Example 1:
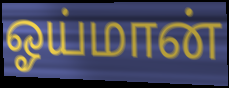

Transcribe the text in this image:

ஓய்மான்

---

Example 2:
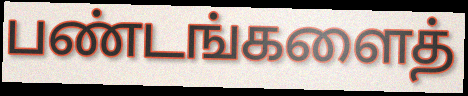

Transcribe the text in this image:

பண்டங்களைத்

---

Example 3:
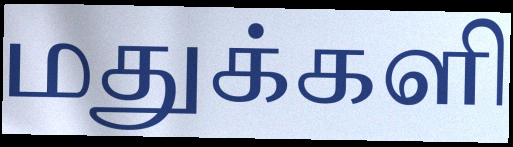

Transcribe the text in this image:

மதுக்களி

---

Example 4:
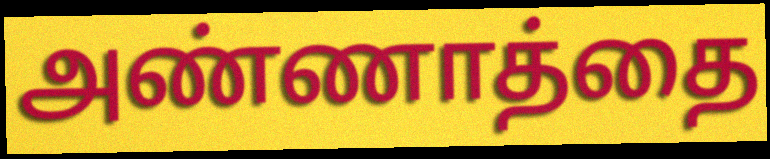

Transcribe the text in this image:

அண்ணாத்தை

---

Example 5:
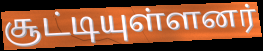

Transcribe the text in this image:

சூட்டியுள்ளனர்